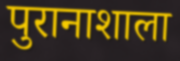
पुरानाशाला